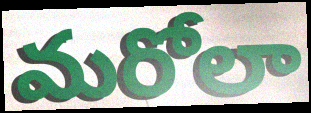
మరోలా